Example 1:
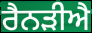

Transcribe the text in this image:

ਰੈਨੜੀਐ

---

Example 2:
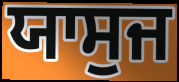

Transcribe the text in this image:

ਯਾਸੁਜ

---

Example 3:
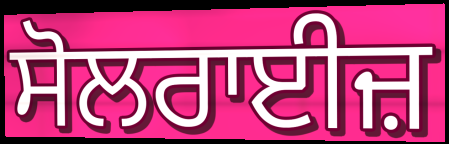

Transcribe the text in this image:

ਸੋਲਰਾਈਜ਼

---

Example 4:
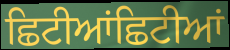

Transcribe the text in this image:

ਛਿਟੀਆਂਛਿਟੀਆਂ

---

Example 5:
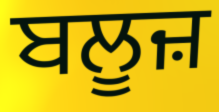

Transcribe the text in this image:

ਬਲੂਜ਼